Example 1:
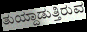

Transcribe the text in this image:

ತುಯ್ದಾಡುತ್ತಿರುವ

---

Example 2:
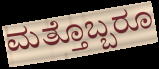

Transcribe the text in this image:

ಮತ್ತೊಬ್ಬರೂ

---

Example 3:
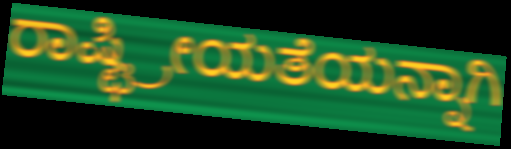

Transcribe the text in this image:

ರಾಷ್ಟ್ರೀಯತೆಯನ್ನಾಗಿ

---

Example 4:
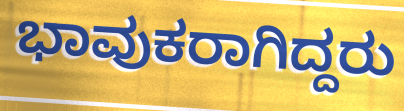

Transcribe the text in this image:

ಭಾವುಕರಾಗಿದ್ದರು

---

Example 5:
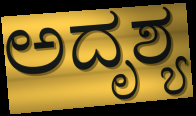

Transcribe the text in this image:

ಅದೃಶ್ಯ